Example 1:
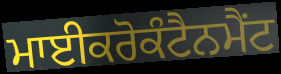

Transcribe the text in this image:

ਮਾਈਕਰੋਕੰਟੈਨਮੈਂਟ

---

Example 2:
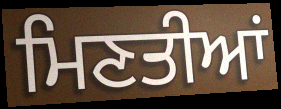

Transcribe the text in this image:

ਮਿਣਤੀਆਂ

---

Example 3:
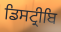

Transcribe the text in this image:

ਡਿਸਟ੍ਰੀਬਿ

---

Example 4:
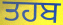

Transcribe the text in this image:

ਤਹਬ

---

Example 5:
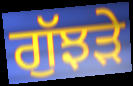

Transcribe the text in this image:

ਗੁੱਝੜੇ